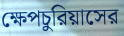
ক্ষেপচুরিয়াসের